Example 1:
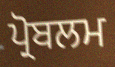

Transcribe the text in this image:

ਪ੍ਰੋਬਲਮ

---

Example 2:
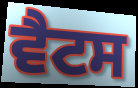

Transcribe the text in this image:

ਵੈਟਸ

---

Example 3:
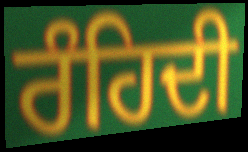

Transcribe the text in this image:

ਰੰਹਿਦੀ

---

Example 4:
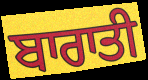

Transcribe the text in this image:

ਬਾਰਾਤੀ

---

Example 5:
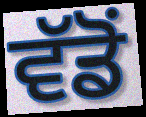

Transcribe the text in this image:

ਵੱਡੋਂ